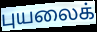
புயலைக்